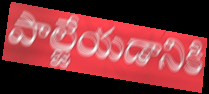
పాల్జేయడానికి